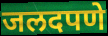
जलदपणे